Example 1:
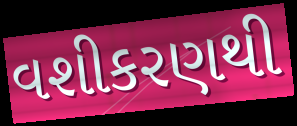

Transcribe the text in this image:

વશીકરણથી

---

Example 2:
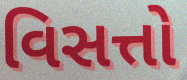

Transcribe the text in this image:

વિસત્તો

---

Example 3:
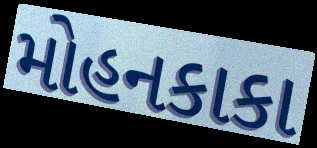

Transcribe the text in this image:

મોહનકાકા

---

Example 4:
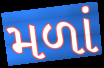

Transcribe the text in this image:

મળાં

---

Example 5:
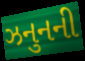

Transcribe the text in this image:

ઝનુનની